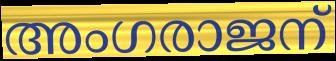
അംഗരാജന്